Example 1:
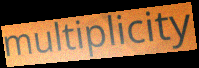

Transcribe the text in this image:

multiplicity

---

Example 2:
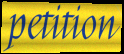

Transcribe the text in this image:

petition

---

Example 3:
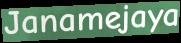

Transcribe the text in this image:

Janamejaya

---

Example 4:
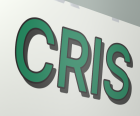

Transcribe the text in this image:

CRIS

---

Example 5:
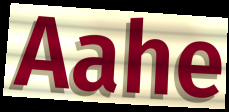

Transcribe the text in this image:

Aahe